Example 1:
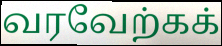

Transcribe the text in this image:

வரவேற்கக்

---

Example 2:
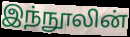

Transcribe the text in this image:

இந்நூலின்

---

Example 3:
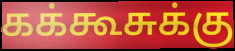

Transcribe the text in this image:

கக்கூசுக்கு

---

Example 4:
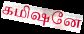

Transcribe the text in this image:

கமிஷனே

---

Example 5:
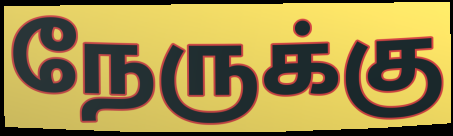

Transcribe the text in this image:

நேருக்கு